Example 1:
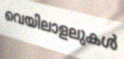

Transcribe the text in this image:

വെയിലാളലുകൾ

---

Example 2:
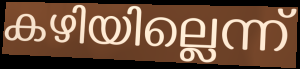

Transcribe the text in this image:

കഴിയില്ലെന്ന്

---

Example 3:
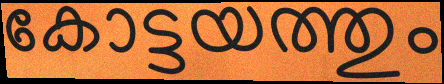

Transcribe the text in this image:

കോട്ടയത്തും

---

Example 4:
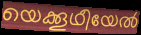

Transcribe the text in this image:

യെക്കൂഥീയേൽ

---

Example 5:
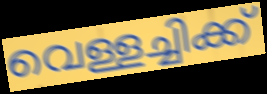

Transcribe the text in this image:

വെള്ളച്ചിക്ക്